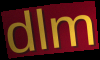
dlm